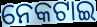
ନେକଟାଇ